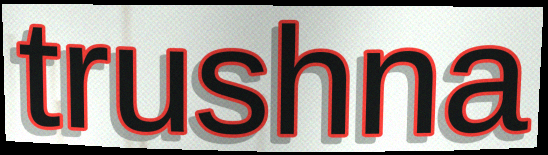
trushna